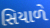
સિયાળે